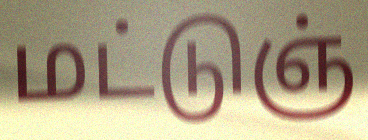
மட்டுஞ்